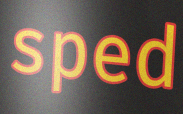
sped